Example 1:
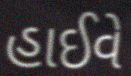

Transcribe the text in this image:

હાઈવે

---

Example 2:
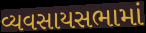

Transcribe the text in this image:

વ્યવસાયસભામાં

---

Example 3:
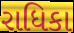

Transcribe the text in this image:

રાધિકા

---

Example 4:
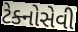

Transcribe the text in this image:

ટેક્નોસેવી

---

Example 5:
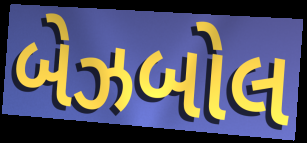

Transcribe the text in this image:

બેઝબોલ